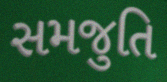
સમજુતિ